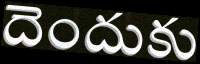
దెందుకు